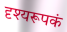
दृश्‍यरूपकं